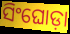
ସିଂଘୋଡ଼ା